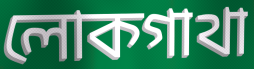
লোকগাথা